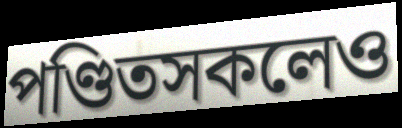
পণ্ডিতসকলেও